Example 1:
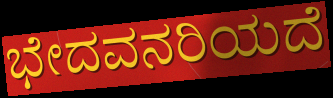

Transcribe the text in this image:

ಭೇದವನರಿಯದೆ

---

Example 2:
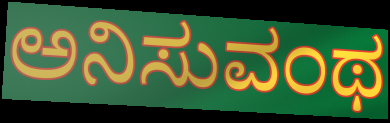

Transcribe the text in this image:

ಅನಿಸುವಂಥ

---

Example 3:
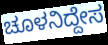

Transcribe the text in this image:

ಚೂಳನಿದ್ದೇಸ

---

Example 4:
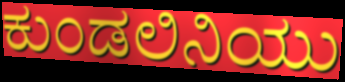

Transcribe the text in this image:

ಕುಂಡಲಿನಿಯು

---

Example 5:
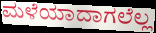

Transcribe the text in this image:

ಮಳೆಯಾದಾಗಲೆಲ್ಲ